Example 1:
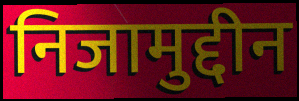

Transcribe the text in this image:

निजामुद्दीन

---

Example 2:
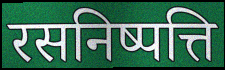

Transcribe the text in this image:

रसनिष्पत्ति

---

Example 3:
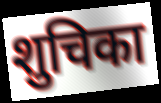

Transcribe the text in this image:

शुचिका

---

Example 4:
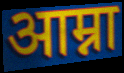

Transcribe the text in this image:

आम्ना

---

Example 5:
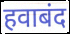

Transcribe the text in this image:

हवाबंद